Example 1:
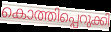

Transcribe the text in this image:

കൊത്തിപ്പെറുക്കി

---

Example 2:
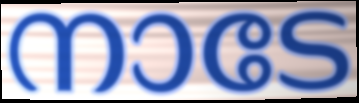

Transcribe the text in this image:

നാടേ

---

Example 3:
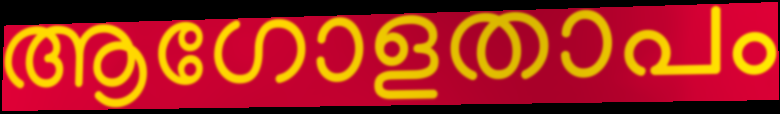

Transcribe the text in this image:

ആഗോളതാപം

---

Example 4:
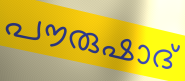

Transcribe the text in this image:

പൗരുഷാദ്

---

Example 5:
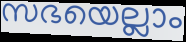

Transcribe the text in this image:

സഭയെല്ലാം